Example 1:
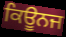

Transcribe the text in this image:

ਕਿਊਨਜ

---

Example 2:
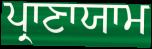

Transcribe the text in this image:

ਪ੍ਰਾਣਾਯਾਮ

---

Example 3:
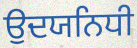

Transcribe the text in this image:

ਉਦਯਨਿਧੀ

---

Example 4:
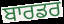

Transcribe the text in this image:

ਬਾਰਡਰ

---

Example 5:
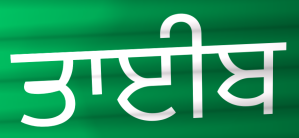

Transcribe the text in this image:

ਤਾਈਬ